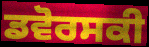
ਡਵੋਰਸਕੀ